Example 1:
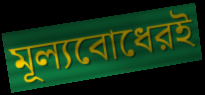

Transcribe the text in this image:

মূল্যবোধেরই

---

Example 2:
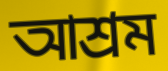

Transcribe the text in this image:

আশ্রম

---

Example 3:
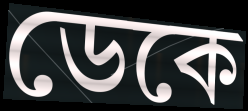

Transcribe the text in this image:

ডেকে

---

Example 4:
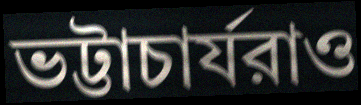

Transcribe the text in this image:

ভট্টাচার্যরাও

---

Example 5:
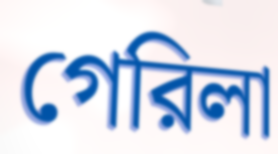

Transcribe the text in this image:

গেরিলা